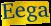
Eega